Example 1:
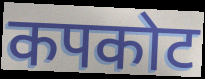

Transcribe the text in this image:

कपकोट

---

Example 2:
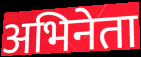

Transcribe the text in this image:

अभिनेता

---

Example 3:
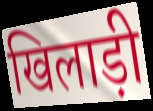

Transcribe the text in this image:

खिलाड़ी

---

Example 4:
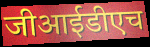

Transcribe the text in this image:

जीआईडीएच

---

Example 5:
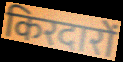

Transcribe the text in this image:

किरदारों